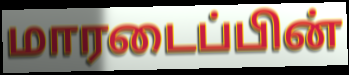
மாரடைப்பின்